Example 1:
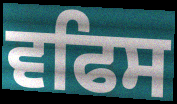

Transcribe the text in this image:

ਵਫਿਸ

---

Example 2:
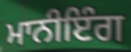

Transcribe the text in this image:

ਮਾਨੀਇੰਗ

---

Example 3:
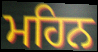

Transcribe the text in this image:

ਮਹਿਨ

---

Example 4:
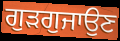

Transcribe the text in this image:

ਗੁੜਗੁਜਾਉਣ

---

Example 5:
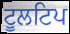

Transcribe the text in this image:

ਟੂਲਟਿਪ